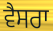
ਵੈਸਰਾ